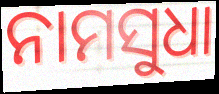
ନାମସୁଧା